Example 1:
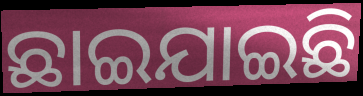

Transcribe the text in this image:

ଛାଇଯାଇଛି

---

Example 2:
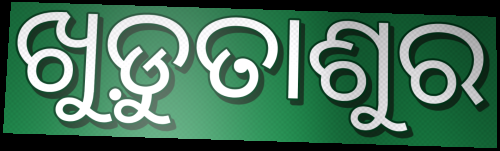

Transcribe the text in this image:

ଖୁଡ଼ୁତାଶୁର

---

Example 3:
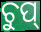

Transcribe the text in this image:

ଚୁପ୍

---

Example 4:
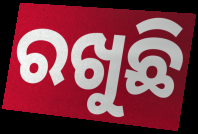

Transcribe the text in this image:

ରଖୁଛି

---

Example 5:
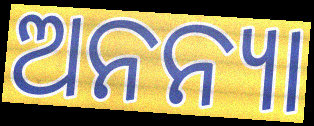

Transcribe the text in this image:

ଅନନ୍ୟା